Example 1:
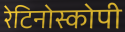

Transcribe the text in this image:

रेटिनोस्कोपी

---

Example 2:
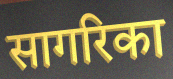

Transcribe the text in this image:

सागरिका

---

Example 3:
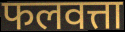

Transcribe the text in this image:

फलवत्ता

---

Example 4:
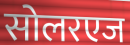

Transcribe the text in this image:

सोलरएज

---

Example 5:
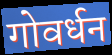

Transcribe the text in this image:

गोवर्धन